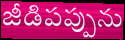
జీడిపప్పును